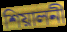
শিয়ালনী